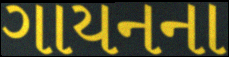
ગાયનના